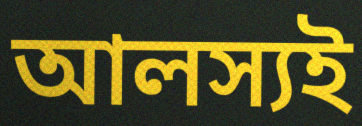
আলস্যই